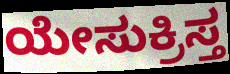
ಯೇಸುಕ್ರಿಸ್ತ